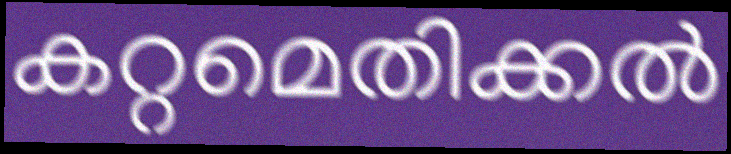
കറ്റമെതിക്കൽ